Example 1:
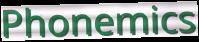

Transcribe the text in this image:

Phonemics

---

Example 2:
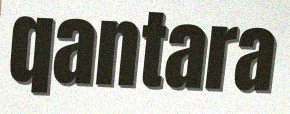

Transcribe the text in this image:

qantara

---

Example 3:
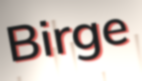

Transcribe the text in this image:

Birge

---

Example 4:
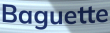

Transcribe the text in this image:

Baguette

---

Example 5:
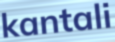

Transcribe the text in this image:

kantali